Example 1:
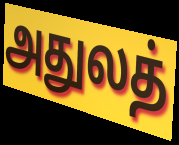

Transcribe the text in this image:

அதுலத்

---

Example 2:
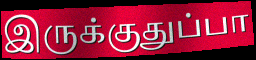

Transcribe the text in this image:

இருக்குதுப்பா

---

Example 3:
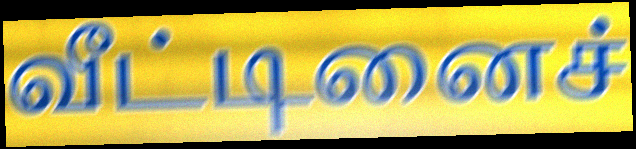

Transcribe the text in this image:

வீட்டினைச்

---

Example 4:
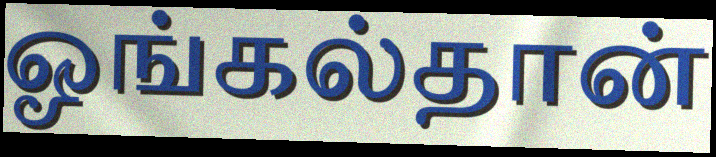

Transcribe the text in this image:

ஓங்கல்தான்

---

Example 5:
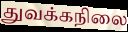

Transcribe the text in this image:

துவக்கநிலை